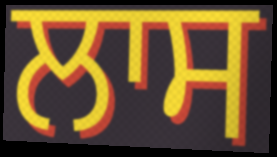
ਲਾਸ